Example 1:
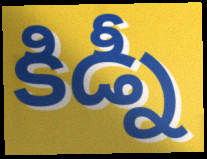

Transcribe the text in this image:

కిడ్నీ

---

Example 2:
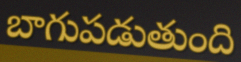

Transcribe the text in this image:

బాగుపడుతుంది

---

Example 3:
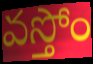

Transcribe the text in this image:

వస్తోం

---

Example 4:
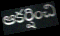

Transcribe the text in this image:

ఆకర్షించి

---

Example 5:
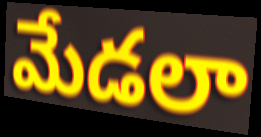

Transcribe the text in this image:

మేడలా